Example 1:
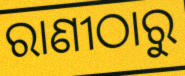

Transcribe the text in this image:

ରାଣୀଠାରୁ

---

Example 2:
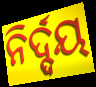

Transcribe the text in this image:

ନିର୍ଦ୍ଦୟ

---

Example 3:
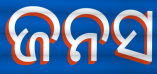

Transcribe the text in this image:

ଜନସ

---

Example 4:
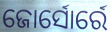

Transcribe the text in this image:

ଜୋର୍ସୋର୍ରେ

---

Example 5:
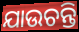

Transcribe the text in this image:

ଯାଉଚନ୍ତି